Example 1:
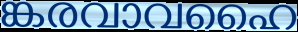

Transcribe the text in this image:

ങ്കരവാവഹൈ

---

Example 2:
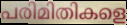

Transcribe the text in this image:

പരിമിതികളെ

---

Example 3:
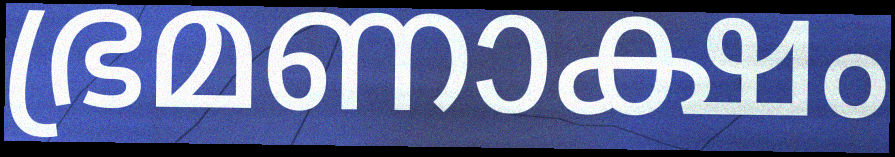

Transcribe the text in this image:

ഭ്രമണാക്ഷം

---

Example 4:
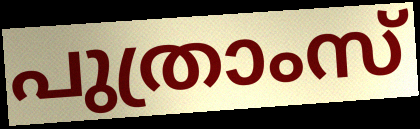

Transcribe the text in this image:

പുത്രാംസ്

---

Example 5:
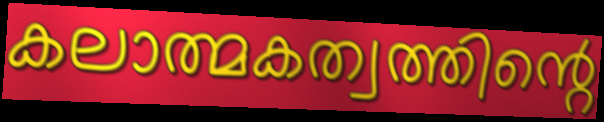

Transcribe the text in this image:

കലാത്മകത്വത്തിന്റെ